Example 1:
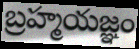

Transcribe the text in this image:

బ్రహ్మయజ్ఞం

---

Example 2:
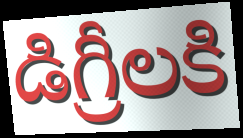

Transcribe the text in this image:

డిగ్రీలకి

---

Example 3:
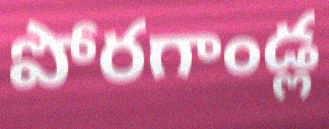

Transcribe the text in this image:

పోరగాండ్ల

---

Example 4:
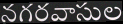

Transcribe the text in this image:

నగరవాసుల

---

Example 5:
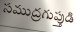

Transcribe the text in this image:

సముద్రగుప్తుడి